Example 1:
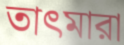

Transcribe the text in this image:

তাৎমারা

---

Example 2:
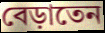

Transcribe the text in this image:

বেড়াতেন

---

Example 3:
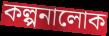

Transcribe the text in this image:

কল্পনালোক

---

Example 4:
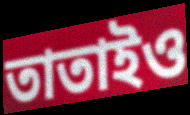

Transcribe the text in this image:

তাতাইও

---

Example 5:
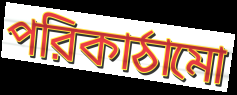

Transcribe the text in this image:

পরিকাঠামো